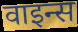
वाइन्स